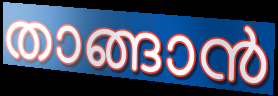
താങ്ങാൻ